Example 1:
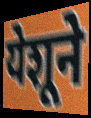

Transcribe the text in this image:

येशूने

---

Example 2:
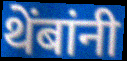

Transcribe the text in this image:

थेंबांनी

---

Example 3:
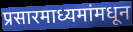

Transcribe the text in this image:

प्रसारमाध्यमांमधून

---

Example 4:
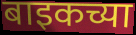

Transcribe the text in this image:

बाइकच्या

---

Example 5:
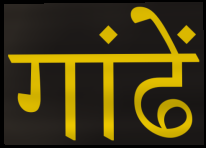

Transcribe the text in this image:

गांढें